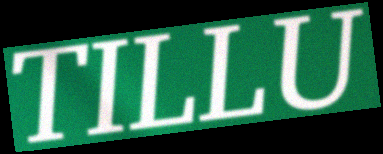
TILLU